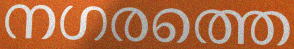
നഗരത്തെ